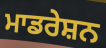
ਮਾਡਰੇਸ਼ਨ